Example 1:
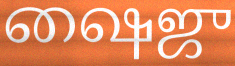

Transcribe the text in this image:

ஷைஜு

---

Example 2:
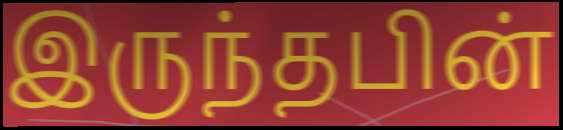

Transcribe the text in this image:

இருந்தபின்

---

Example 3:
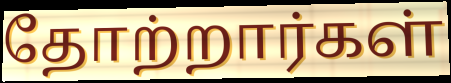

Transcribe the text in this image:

தோற்றார்கள்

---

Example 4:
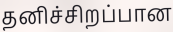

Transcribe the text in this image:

தனிச்சிறப்பான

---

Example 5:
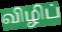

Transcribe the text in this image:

விழிப்